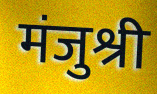
मंजुश्री